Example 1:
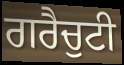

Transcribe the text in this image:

ਗਰੈਚੁਟੀ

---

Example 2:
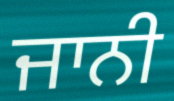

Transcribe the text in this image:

ਜਾਨੀ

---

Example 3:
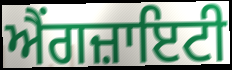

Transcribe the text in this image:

ਐਂਗਜ਼ਾਇਟੀ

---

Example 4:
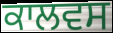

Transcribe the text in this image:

ਕਾਲਵਸ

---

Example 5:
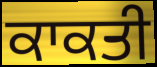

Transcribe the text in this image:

ਕਾਕਤੀ